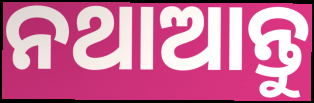
ନଥାଆନ୍ତୁ